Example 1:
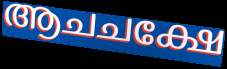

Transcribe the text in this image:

ആചചക്ഷേ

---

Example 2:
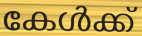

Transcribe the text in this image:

കേൾക്ക്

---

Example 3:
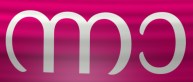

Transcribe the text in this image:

ന്നാ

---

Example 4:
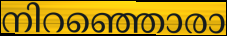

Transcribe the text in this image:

നിറഞ്ഞൊരാ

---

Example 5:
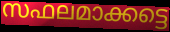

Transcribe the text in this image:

സഫലമാക്കട്ടെ